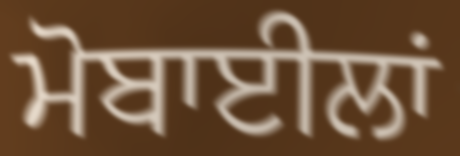
ਮੋਬਾਈਲਾਂ